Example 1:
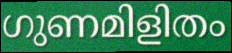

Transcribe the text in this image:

ഗുണമിളിതം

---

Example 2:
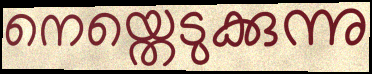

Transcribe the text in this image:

നെയ്തെടുക്കുന്നു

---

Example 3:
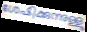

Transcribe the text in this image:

ശേഷിക്കുന്നുള്ളു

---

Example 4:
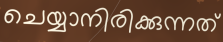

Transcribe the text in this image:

ചെയ്യാനിരിക്കുന്നത്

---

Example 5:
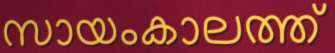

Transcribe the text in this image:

സായംകാലത്ത്